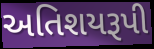
અતિશયરૂપી